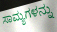
ಸಾಮ್ಯಗಳನ್ನು